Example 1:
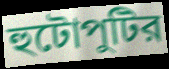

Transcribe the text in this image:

হুটোপুটির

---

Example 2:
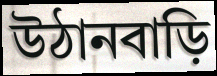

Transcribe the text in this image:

উঠানবাড়ি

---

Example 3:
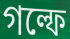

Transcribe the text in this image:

গল্ফে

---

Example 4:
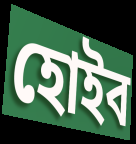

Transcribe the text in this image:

হোইব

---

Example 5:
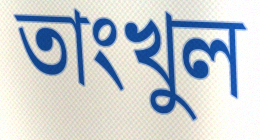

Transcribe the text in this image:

তাংখুল